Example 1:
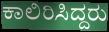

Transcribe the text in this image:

ಕಾಲಿರಿಸಿದ್ದರು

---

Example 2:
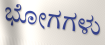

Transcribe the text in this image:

ಭೋಗಗಳು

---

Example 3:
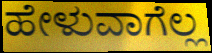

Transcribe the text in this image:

ಹೇಳುವಾಗೆಲ್ಲ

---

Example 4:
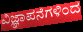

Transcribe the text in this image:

ವಿಜ್ಞಾಪನೆಗಳಿಂದ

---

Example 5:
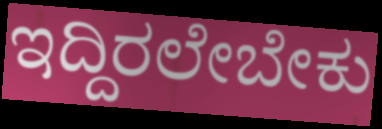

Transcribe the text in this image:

ಇದ್ದಿರಲೇಬೇಕು